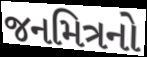
જનમિત્રનો